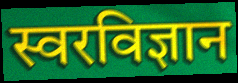
स्वरविज्ञान